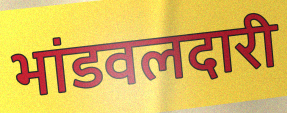
भांडवलदारी